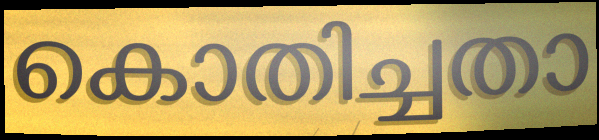
കൊതിച്ചതാ